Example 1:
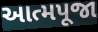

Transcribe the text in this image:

આત્મપૂજા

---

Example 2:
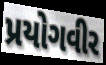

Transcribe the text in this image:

પ્રયોગવીર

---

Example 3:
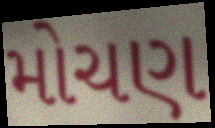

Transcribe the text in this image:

મોચણ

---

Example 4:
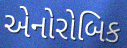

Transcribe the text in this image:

એનોરોબિક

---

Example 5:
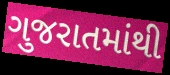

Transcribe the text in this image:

ગુજરાતમાંથી